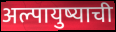
अल्पायुष्याची